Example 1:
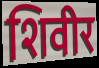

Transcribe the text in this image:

शिवीर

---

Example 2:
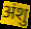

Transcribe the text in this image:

अंशु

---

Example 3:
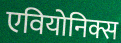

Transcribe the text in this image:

एवियोनिक्स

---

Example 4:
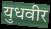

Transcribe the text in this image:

युधवीर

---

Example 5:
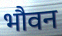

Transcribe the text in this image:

भौवन